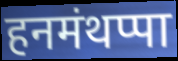
हनमंथप्पा